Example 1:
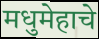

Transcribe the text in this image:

मधुमेहाचे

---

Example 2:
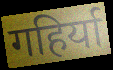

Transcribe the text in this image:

गहिर्या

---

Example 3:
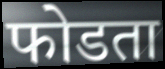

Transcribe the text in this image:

फोडता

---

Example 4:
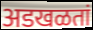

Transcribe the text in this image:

अडखळतां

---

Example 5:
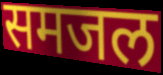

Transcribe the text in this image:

समजल